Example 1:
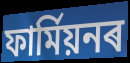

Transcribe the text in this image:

ফাৰ্মিয়নৰ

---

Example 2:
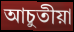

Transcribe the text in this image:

আচুতীয়া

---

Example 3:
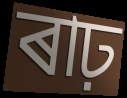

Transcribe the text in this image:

ৰাঢ়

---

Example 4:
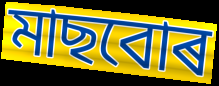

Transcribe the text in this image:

মাছবোৰ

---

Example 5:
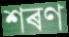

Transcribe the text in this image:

শৰণ